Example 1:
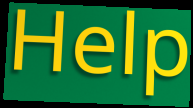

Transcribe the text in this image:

Help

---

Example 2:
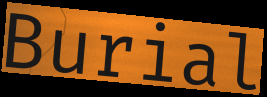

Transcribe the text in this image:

Burial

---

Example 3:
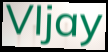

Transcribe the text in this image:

VIjay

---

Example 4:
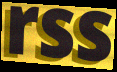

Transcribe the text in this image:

rss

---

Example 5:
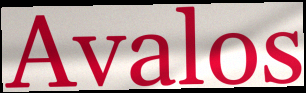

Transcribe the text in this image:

Avalos